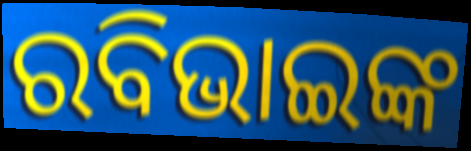
ରବିଭାଇଙ୍କ